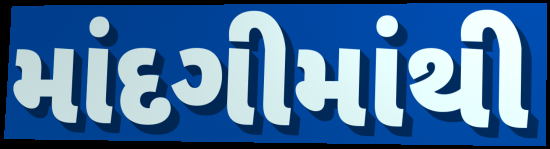
માંદગીમાંથી